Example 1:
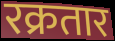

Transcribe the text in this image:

रक्रतार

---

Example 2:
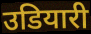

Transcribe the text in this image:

उडियारी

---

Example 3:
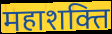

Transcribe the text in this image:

महाशक्ति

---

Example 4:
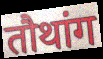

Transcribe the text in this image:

तौथांग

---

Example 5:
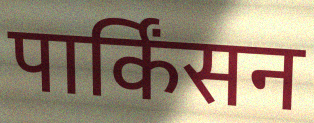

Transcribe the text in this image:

पार्किंसन